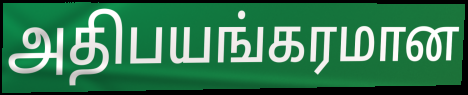
அதிபயங்கரமான